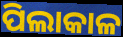
ପିଲାକାଳ